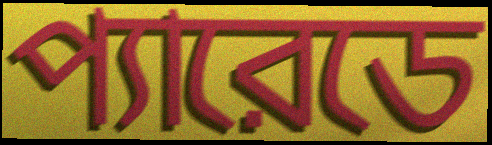
প্যারেডে